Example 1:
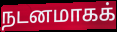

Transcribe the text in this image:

நடனமாகக்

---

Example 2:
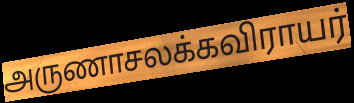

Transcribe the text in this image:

அருணாசலக்கவிராயர்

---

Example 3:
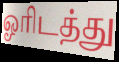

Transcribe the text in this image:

ஓரிடத்து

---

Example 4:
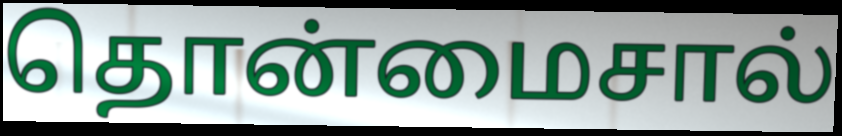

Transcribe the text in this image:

தொன்மைசால்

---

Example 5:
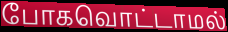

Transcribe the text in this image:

போகவொட்டாமல்